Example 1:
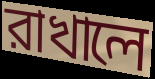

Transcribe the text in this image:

রাখালে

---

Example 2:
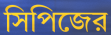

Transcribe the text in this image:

সিপিজের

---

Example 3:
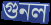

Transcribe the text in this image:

গুনল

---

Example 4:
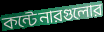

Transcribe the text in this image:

কন্টেনারগুলোর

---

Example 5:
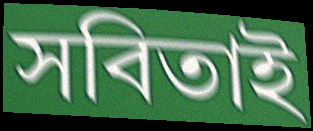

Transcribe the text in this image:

সবিতাই